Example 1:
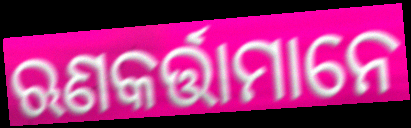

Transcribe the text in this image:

ଋଣକର୍ତ୍ତାମାନେ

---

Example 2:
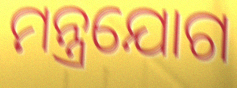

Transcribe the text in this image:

ମନ୍ତ୍ରଯୋଗ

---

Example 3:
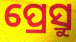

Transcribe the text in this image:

ପ୍ରେସ୍ରୁ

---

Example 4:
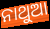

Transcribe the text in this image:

ନାଥୁଆ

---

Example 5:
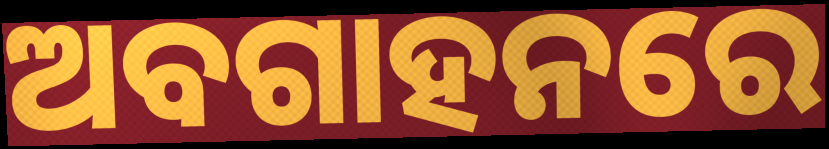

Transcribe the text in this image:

ଅବଗାହନରେ